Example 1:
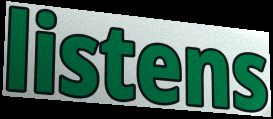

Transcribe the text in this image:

listens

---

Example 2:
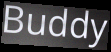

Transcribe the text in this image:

Buddy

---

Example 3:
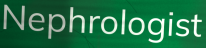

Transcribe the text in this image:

Nephrologist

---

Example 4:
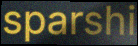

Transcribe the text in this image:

sparshi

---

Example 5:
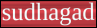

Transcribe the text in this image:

sudhagad